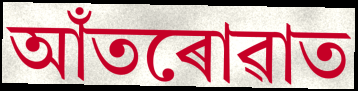
আঁতৰোৱাত